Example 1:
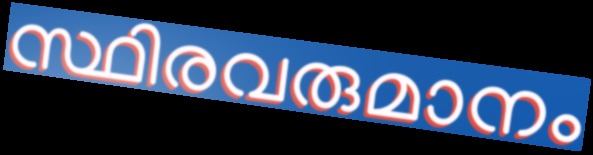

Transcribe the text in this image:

സ്ഥിരവരുമാനം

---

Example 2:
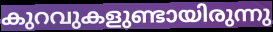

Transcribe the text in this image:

കുറവുകളുണ്ടായിരുന്നു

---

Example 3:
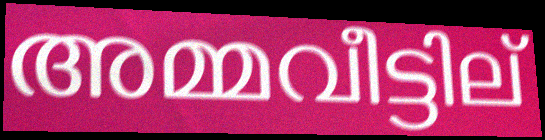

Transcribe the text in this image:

അമ്മവീട്ടില്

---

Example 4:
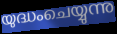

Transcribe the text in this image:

യുദ്ധംചെയ്യുന്നു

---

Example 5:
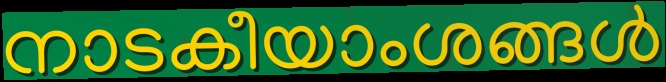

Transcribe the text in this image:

നാടകീയാംശങ്ങൾ